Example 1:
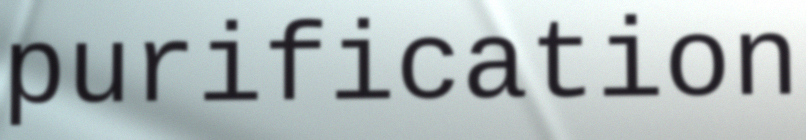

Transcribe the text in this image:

purification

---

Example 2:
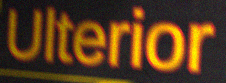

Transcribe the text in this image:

Ulterior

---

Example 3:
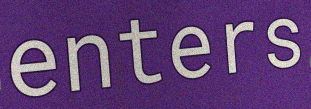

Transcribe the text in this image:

enters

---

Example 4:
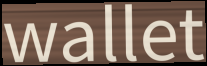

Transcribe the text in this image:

wallet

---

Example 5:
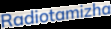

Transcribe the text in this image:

Radiotamizha